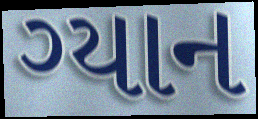
ગ્યાન